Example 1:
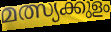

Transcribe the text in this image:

മത്സ്യക്കുളം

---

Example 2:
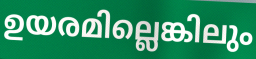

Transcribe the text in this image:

ഉയരമില്ലെങ്കിലും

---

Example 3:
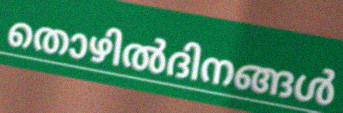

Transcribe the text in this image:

തൊഴിൽദിനങ്ങൾ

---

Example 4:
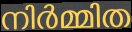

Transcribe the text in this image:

നിർമ്മിത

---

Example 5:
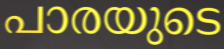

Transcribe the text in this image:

പാരയുടെ